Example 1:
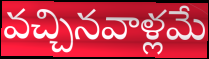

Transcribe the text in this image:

వచ్చినవాళ్లమే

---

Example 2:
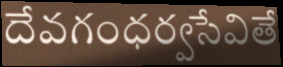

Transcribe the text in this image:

దేవగంధర్వసేవితే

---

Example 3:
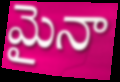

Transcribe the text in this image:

మైనా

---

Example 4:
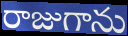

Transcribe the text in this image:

రాజుగాను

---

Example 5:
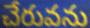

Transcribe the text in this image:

చేరువను